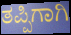
ತಪ್ಪಿಗಾಗಿ